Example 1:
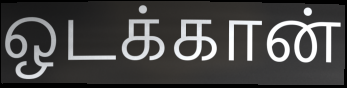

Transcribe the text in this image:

ஒடக்கான்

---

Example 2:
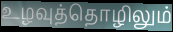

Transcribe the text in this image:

உழவுத்தொழிலும்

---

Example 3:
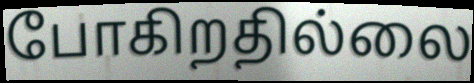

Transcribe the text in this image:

போகிறதில்லை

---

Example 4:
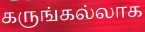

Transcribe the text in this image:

கருங்கல்லாக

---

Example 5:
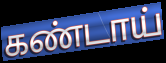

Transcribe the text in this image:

கண்டாய்